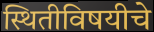
स्थितीविषयीचे